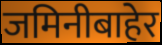
जमिनीबाहेर